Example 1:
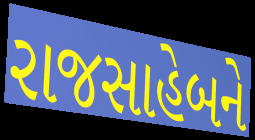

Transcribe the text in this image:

રાજસાહેબને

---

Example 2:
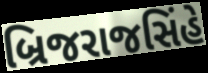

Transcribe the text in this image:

બ્રિજરાજસિંહે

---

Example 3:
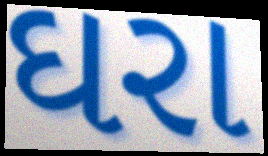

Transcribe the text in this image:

ઘરા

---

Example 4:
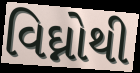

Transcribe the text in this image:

વિઘ્નોથી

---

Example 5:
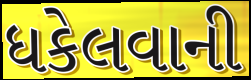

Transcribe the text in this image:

ધકેલવાની